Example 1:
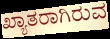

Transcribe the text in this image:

ಖ್ಯಾತರಾಗಿರುವ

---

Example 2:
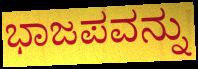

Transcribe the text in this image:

ಭಾಜಪವನ್ನು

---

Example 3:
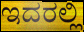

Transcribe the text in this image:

ಇದರಲ್ಲಿ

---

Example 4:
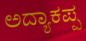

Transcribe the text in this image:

ಅದ್ಯಾಕಪ್ಪ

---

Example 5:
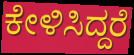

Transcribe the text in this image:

ಕೇಳಿಸಿದ್ದರೆ